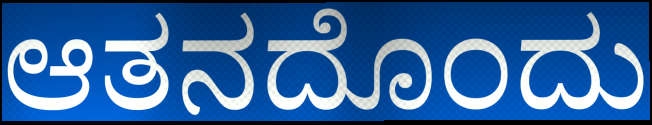
ಆತನದೊಂದು